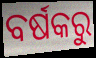
ବର୍ଷକରୁ